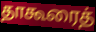
தாகூரைத்